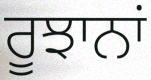
ਰੂਝਾਨਾਂ